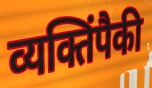
व्यक्तिंपैकी